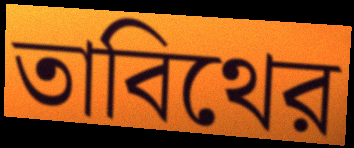
তাবিথের